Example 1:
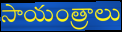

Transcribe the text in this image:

సాయంత్రాలు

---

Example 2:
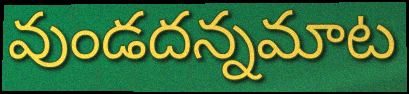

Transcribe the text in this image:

వుండదన్నమాట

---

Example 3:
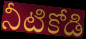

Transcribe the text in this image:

నీటికోడి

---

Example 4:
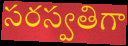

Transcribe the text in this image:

సరస్వతిగా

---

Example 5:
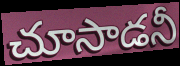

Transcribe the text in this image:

చూసాడనీ